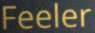
Feeler